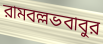
রামবল্লভবাবুর